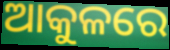
ଆକୁଳରେ